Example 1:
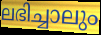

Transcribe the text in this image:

ലഭിച്ചാലും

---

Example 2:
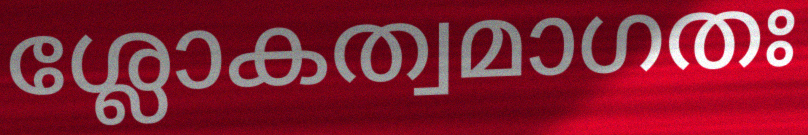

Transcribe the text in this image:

ശ്ലോകത്വമാഗതഃ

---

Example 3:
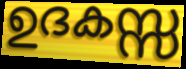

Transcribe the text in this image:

ഉദകസ്സ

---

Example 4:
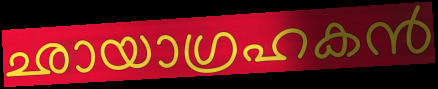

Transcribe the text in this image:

ഛായാഗ്രഹകൻ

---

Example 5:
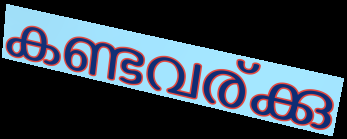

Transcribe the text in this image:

കണ്ടവര്ക്കു